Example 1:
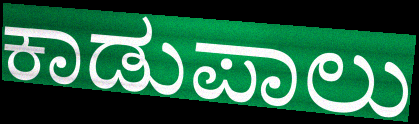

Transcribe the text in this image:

ಕಾಡುಪಾಲು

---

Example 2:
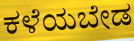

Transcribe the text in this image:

ಕಳೆಯಬೇಡ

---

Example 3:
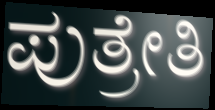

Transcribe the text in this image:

ಪುತ್ರೇತಿ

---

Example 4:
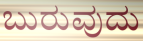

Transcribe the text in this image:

ಬುರುವುದು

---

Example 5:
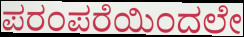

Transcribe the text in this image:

ಪರಂಪರೆಯಿಂದಲೇ